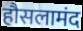
हौसलामंद